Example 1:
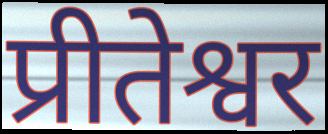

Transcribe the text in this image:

प्रीतेश्वर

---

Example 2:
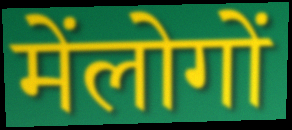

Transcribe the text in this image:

मेंलोगों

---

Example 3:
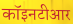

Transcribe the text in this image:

कॉइनटीआर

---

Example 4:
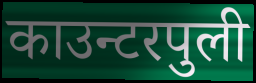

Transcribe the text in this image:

काउन्टरपुली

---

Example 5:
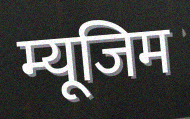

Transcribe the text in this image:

म्यूजिम